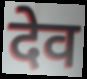
देव